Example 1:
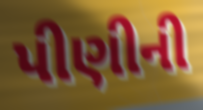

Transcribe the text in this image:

પીણીની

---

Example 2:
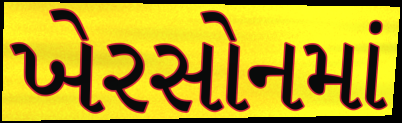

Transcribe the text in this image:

ખેરસોનમાં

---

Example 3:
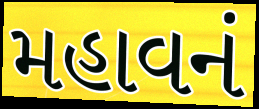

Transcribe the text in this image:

મહાવનં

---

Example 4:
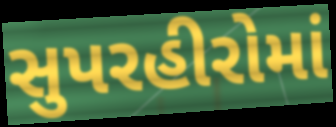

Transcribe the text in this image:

સુપરહીરોમાં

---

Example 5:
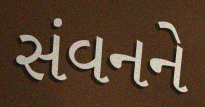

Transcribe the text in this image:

સંવનને